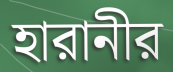
হারানীর